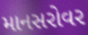
માનસરોવર